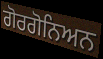
ਗੋਰਗੋਨਿਅਨ